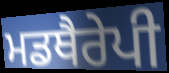
ਮਡਥੈਰੇਪੀ